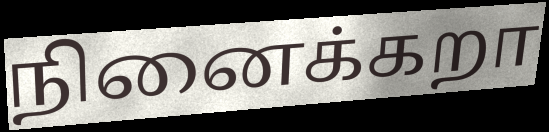
நினைக்கறா